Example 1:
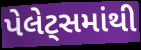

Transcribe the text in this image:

પેલેટ્સમાંથી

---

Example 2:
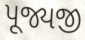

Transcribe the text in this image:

પૂજ્યજી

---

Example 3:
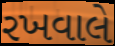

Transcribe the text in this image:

રખવાલે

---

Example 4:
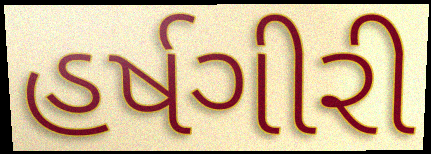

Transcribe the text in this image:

હર્ષગીરી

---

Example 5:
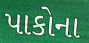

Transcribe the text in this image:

પાકોના